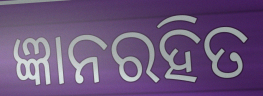
ଜ୍ଞାନରହିତ